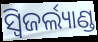
ସ୍ୱିଜର୍ଲ୍ୟାଣ୍ଡ